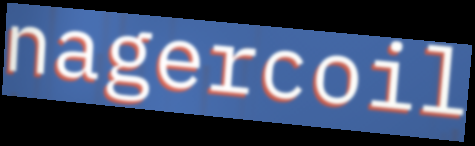
nagercoil